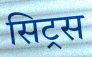
सिट्रस